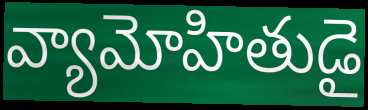
వ్యామోహితుడై